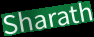
Sharath